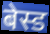
बेस्ड